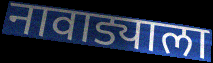
नावाड्याला